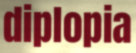
diplopia